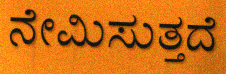
ನೇಮಿಸುತ್ತದೆ